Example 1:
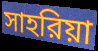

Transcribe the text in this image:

সাহরিয়া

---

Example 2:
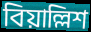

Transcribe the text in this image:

বিয়াল্লিশ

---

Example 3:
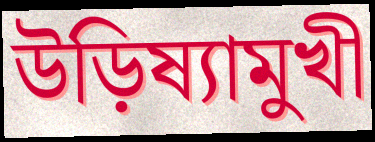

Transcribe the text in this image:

উড়িষ্যামুখী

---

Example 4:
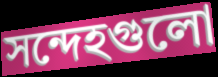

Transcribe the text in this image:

সন্দেহগুলো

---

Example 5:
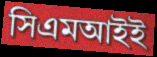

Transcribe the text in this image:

সিএমআইই